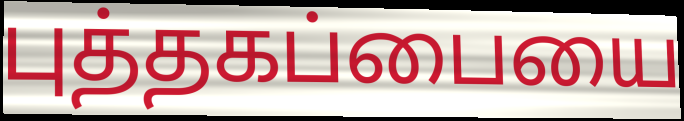
புத்தகப்பையை